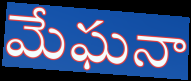
మేఘనా